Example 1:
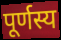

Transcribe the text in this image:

पूर्णस्य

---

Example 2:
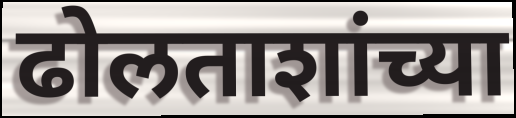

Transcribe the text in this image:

ढोलताशांच्या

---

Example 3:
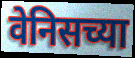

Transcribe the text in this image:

वेनिसच्या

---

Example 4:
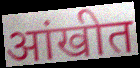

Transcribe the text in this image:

आंखीत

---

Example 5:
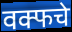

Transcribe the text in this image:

वक्फचे